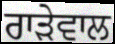
ਰਾੜੇਵਾਲ